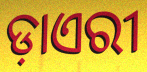
ଡ଼ାଏରୀ